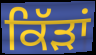
ਕਿੱੜਾਂ